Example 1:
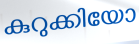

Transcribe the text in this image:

കുറുക്കിയോ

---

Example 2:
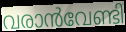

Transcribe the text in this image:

വരാൻവേണ്ടി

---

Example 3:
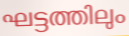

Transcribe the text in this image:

ഘട്ടത്തിലും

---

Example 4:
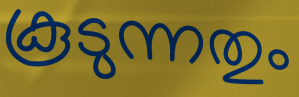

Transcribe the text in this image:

കൂടുന്നതും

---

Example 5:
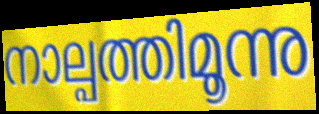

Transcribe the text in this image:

നാല്പത്തിമൂന്നു